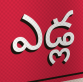
ఎడ్ల